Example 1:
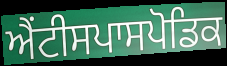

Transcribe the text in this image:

ਐਂਟੀਸਪਾਸਪੋਡਿਕ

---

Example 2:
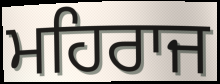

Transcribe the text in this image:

ਮਹਿਰਾਜ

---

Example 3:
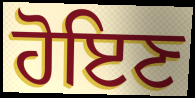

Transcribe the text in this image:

ਹੋਇਣ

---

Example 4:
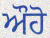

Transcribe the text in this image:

ਔਹੋ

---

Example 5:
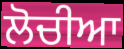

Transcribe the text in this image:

ਲੋਚੀਆ